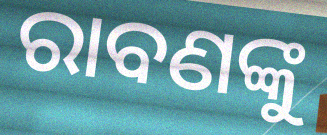
ରାବଣଙ୍କୁ